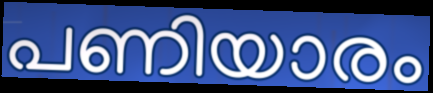
പണിയാരം